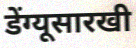
डेंग्यूसारखी